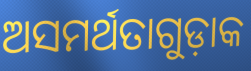
ଅସମର୍ଥତାଗୁଡ଼ାକ